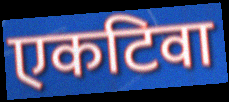
एकटिवा